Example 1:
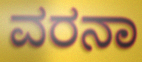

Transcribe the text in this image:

ವರನಾ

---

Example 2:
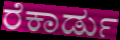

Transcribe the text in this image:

ರೆಕಾರ್ಡು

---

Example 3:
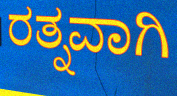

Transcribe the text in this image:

ರತ್ನವಾಗಿ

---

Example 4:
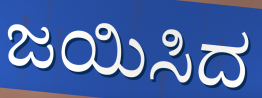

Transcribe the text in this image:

ಜಯಿಸಿದ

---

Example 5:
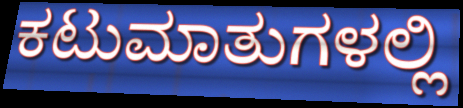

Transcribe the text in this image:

ಕಟುಮಾತುಗಳಲ್ಲಿ